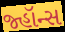
જ્હૉન્સ